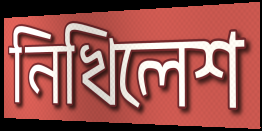
নিখিলেশ